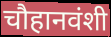
चौहानवंशी